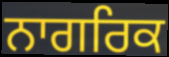
ਨਾਗਰਿਕ